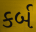
કર્બ